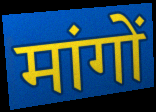
मांगों